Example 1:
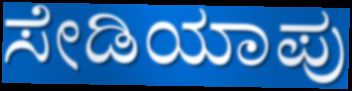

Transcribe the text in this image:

ಸೇಡಿಯಾಪು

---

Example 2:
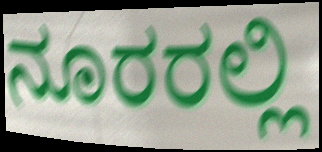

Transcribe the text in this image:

ನೂರರಲ್ಲಿ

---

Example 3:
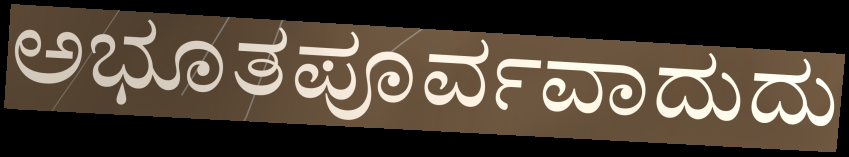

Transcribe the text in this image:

ಅಭೂತಪೂರ್ವವಾದುದು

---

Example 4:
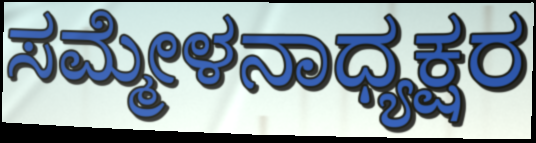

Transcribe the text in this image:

ಸಮ್ಮೇಳನಾಧ್ಯಕ್ಷರ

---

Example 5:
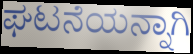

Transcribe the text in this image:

ಘಟನೆಯನ್ನಾಗಿ